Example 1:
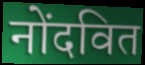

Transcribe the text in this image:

नोंदवित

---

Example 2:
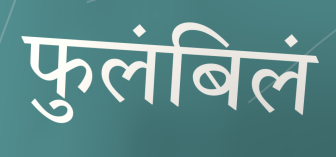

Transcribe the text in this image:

फुलंबिलं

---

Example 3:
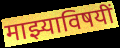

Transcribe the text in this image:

माझ्याविषयीं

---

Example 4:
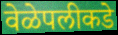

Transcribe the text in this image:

वेळेपलीकडे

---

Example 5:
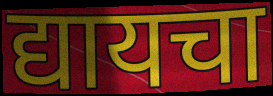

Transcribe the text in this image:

द्यायचा